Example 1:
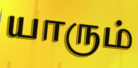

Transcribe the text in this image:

யாரும்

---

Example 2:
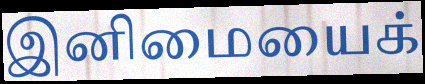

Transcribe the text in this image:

இனிமையைக்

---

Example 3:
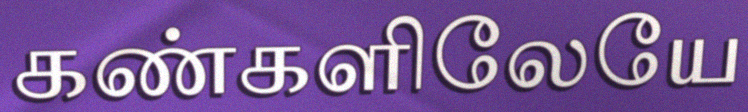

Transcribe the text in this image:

கண்களிலேயே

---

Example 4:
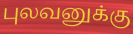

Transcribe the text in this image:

புலவனுக்கு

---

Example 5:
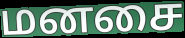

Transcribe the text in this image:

மனசை